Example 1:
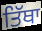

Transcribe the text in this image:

ਤਿੱਥਾ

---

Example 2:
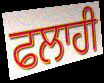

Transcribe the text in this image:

ਫਲਾਹੀ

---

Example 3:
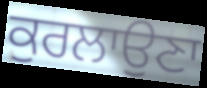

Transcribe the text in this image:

ਕੁਰਲਾਉਣਾ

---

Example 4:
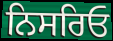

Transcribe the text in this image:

ਨਿਸਰਿਓ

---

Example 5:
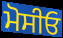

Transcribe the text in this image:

ਮੋਸੀਓ